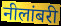
नीलांबरी